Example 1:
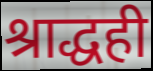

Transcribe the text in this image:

श्राद्धही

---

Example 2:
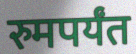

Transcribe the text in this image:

रुमपर्यंत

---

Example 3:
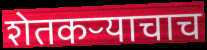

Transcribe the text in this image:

शेतकऱ्याचाच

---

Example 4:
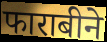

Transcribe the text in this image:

फाराबीने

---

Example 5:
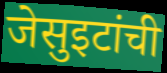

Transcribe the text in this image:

जेसुइटांची